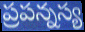
ప్రపన్నస్య